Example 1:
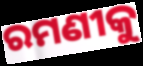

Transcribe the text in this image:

ରମଣୀକୁ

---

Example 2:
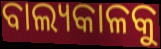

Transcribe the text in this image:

ବାଲ୍ୟକାଳକୁ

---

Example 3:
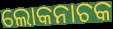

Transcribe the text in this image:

ଲୋକନାଚକ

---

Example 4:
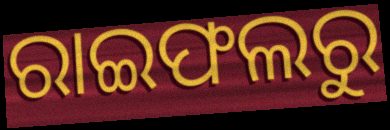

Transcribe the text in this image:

ରାଇଫଲରୁ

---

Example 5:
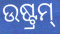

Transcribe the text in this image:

ଉଷ୍ଟ୍ରମ୍